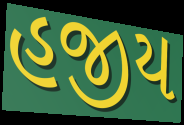
હજીય